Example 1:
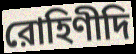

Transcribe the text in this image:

রোহিণীদি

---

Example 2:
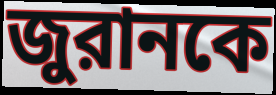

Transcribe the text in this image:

জুরানকে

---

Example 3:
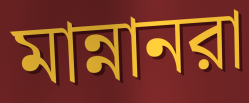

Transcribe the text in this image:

মান্নানরা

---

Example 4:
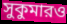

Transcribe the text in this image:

সুকুমারও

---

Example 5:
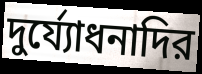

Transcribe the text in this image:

দুর্য্যোধনাদির